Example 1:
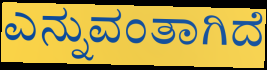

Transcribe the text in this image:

ಎನ್ನುವಂತಾಗಿದೆ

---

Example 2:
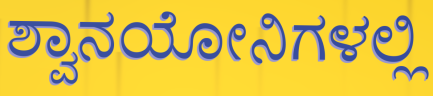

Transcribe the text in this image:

ಶ್ವಾನಯೋನಿಗಳಲ್ಲಿ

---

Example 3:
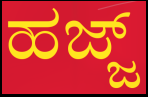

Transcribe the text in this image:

ಹಜ್ಜ್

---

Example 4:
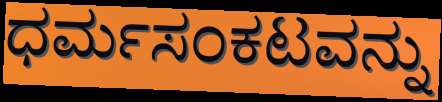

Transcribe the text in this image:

ಧರ್ಮಸಂಕಟವನ್ನು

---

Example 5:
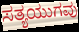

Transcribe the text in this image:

ಸತ್ಯಯುಗವು